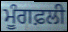
ਮੂੰਗਫ਼ਲੀ